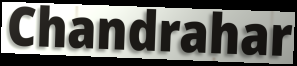
Chandrahar